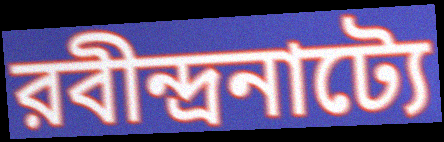
রবীন্দ্রনাট্যে